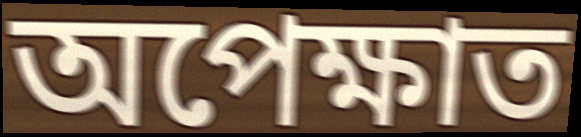
অপেক্ষাত